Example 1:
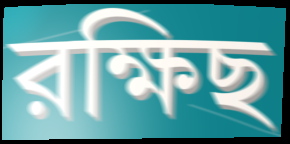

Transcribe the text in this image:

রক্ষিছ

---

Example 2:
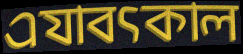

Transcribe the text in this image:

এযাবৎকাল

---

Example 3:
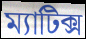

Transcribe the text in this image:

ম্যাটিক্স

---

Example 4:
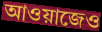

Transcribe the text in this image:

আওয়াজেও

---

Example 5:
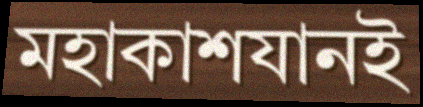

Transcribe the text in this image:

মহাকাশযানই